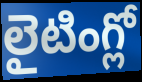
లైటింగ్లో